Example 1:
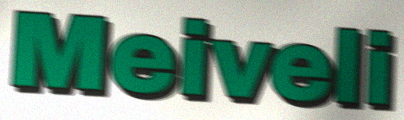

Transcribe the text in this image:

Meiveli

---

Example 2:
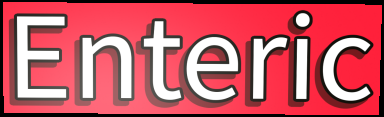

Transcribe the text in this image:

Enteric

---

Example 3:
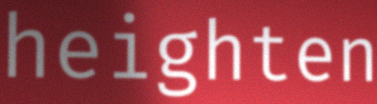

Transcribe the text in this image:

heighten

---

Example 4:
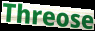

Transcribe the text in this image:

Threose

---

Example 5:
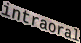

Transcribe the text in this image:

intraoral